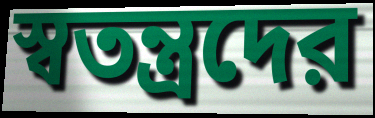
স্বতন্ত্রদের